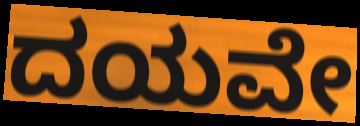
ದಯವೇ